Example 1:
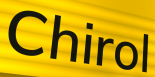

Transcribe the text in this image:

Chirol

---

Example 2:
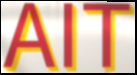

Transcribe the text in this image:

AIT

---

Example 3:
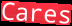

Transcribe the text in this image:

Cares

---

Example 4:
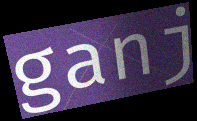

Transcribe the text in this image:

ganj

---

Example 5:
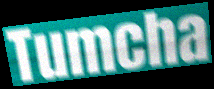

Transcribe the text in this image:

Tumcha